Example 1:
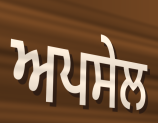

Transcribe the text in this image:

ਅਪਸੇਲ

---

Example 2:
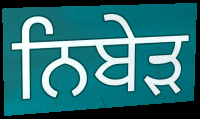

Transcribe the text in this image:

ਨਿਬੇੜ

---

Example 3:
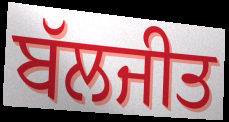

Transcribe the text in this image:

ਬੱਲਜੀਤ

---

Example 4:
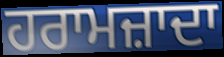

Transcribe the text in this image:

ਹਰਾਮਜ਼ਾਦਾ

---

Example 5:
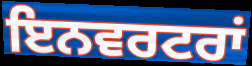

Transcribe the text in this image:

ਇਨਵਰਟਰਾਂ